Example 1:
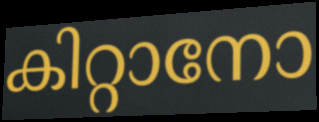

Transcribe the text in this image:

കിറ്റാനോ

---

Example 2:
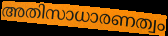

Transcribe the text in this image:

അതിസാധാരണത്വം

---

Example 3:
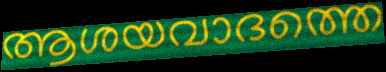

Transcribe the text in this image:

ആശയവാദത്തെ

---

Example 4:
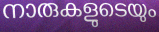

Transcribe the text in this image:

നാരുകളുടെയും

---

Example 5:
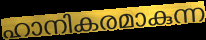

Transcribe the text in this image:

ഹാനികരമാകുന്ന